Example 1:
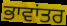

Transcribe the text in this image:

ਭਾਵਾਂਤਰ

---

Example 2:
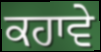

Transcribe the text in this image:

ਕਹਾਵੇ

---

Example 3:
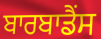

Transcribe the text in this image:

ਬਾਰਬਾਡੈਂਸ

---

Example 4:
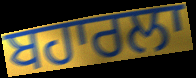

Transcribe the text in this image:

ਬਹਾਰਲਾ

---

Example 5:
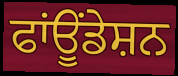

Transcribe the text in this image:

ਫਾਂਊਂਡੇਸ਼ਨ